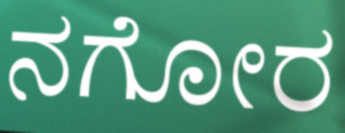
ನಗೋರ